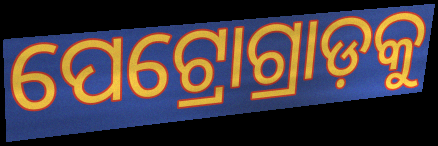
ପେଟ୍ରୋଗ୍ରାଡ଼କୁ